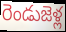
రెండుజెళ్ల